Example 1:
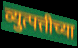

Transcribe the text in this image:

व्युत्पत्तीच्या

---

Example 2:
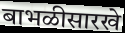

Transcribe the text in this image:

बाभळीसारखे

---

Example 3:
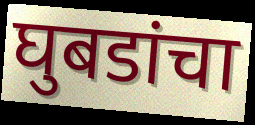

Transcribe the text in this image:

घुबडांचा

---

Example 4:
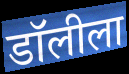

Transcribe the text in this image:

डॉलीला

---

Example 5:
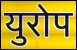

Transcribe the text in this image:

युरोप